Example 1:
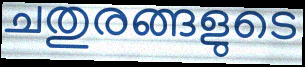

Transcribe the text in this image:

ചതുരങ്ങളുടെ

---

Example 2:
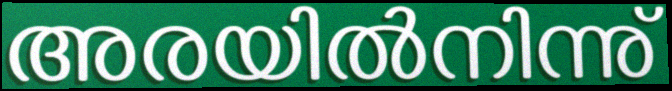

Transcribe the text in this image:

അരയിൽനിന്നു്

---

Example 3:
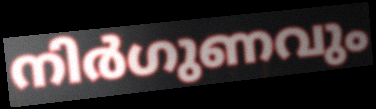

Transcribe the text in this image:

നിർഗുണവും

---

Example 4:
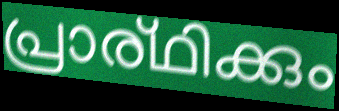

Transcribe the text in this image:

പ്രാര്ഥിക്കും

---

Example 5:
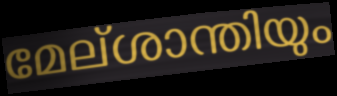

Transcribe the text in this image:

മേല്ശാന്തിയും